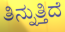
ತಿನ್ನುತ್ತಿದೆ